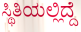
ಸ್ಥಿತಿಯಲ್ಲಿದ್ದೆ